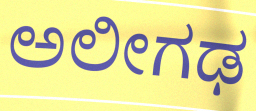
ಅಲೀಗಢ